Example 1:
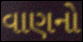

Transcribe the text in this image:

વાણનો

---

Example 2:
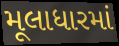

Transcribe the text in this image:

મૂલાધારમાં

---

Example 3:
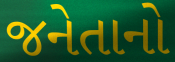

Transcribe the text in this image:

જનેતાનો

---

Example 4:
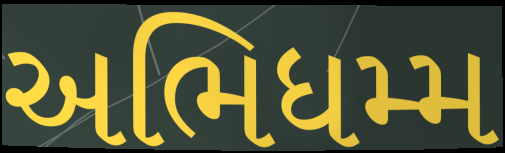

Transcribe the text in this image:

અભિધમ્મ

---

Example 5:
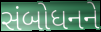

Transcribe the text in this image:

સંબોધનને